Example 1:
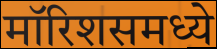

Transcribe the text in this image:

मॉरिशसमध्ये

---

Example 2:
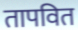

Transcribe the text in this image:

तापवित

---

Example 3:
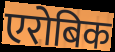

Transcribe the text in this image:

एरोबिक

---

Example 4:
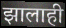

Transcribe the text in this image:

झालाही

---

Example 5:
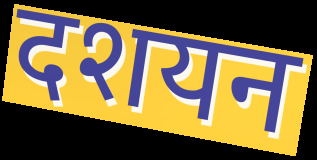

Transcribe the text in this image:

दशयन